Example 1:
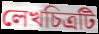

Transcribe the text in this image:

লেখচিত্রটি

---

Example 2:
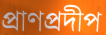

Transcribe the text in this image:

প্রাণপ্রদীপ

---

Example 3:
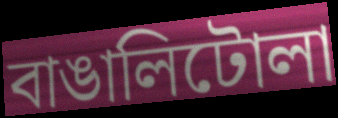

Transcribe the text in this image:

বাঙালিটোলা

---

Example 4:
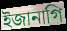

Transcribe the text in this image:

ইজানাগি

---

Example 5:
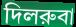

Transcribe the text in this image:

দিলরুবা